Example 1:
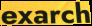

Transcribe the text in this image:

exarch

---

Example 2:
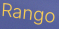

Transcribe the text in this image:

Rango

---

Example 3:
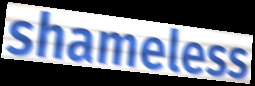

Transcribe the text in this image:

shameless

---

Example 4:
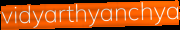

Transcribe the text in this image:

vidyarthyanchya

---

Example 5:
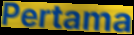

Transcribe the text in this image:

Pertama